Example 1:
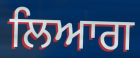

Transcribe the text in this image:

ਲਿਆਗ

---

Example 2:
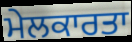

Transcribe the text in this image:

ਮੇਲਕਾਰਤਾ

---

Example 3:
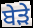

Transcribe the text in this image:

ਬੇੜੇ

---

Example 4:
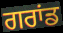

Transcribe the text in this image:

ਗਰਾਂਡ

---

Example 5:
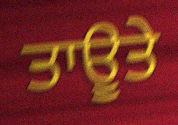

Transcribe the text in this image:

ਤਾਊਤੇ